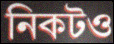
নিকটও